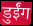
डुईंग